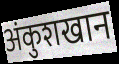
अंकुशखान